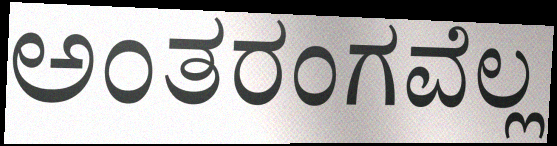
ಅಂತರಂಗವೆಲ್ಲ